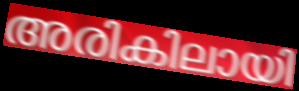
അരികിലായി